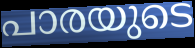
പാരയുടെ